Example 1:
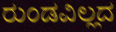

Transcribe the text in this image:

ರುಂಡವಿಲ್ಲದ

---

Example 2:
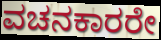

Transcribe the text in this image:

ವಚನಕಾರರೇ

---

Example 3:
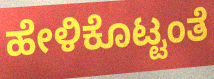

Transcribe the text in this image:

ಹೇಳಿಕೊಟ್ಟಂತೆ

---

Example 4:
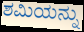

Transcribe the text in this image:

ಶಮಿಯನ್ನು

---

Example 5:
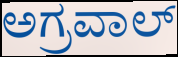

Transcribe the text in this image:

ಅಗ್ರವಾಲ್